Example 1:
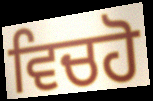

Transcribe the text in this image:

ਵਿਚਹੋ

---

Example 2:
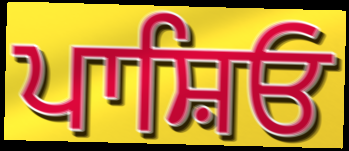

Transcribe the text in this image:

ਪਾਸ਼ਿਓ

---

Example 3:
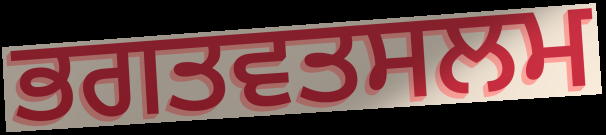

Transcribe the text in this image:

ਭਗਤਵਤਸਲਮ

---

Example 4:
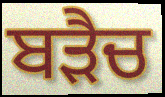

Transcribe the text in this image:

ਬੜੈਚ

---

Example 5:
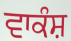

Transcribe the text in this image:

ਵਾਕੰਸ਼